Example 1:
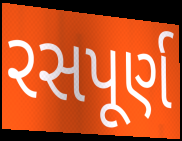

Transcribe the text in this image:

રસપૂર્ણ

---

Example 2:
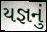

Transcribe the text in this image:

યજ્ઞનું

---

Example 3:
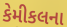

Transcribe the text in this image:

કેમીકલના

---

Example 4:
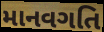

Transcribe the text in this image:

માનવગતિ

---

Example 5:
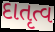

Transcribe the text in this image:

દાતૃત્વ